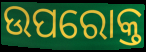
ଉପରୋକ୍ତ